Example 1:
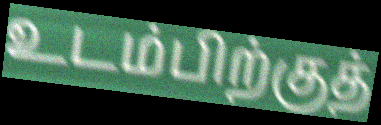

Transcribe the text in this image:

உடம்பிற்குத்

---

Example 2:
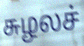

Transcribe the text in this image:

சுழலச்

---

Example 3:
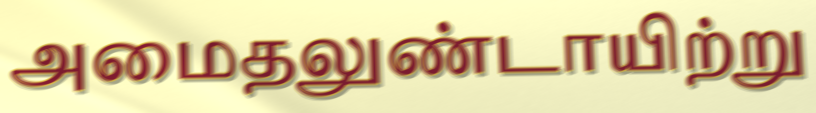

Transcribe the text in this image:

அமைதலுண்டாயிற்று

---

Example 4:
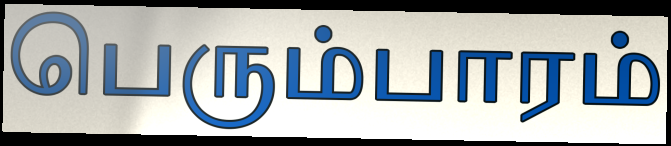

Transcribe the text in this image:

பெரும்பாரம்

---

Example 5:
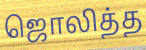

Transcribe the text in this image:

ஜொலித்த